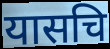
यासचि